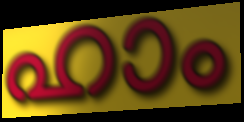
ഹാം